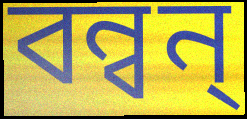
বন্বন্